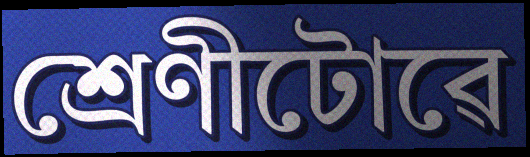
শ্ৰেণীটোৱে